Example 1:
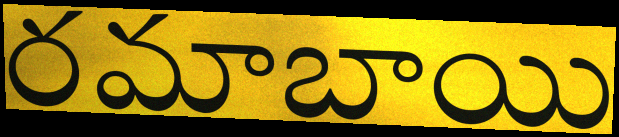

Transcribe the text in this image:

రమాబాయి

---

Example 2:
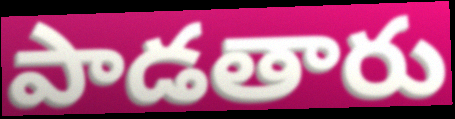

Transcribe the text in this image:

పాడతారు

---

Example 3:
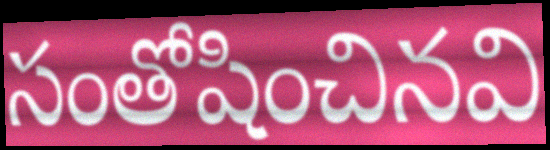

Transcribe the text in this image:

సంతోషించినవి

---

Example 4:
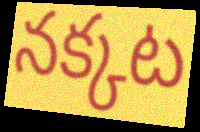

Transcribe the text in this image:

నక్కట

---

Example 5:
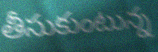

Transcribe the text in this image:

తీసుకుంటున్న